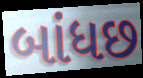
બાંધછ